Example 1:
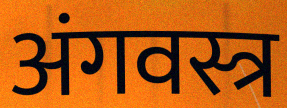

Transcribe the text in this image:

अंगवस्त्र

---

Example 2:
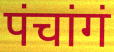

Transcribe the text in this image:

पंचांगं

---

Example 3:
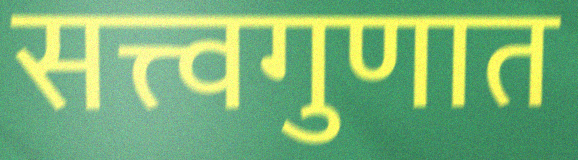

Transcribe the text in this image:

सत्त्वगुणात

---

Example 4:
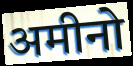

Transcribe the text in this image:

अमीनो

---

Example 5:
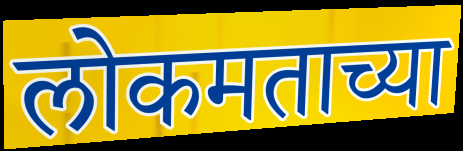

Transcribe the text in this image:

लोकमताच्या